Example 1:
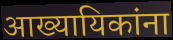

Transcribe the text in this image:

आख्यायिकांना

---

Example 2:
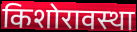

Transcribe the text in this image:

किशोरावस्था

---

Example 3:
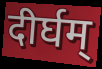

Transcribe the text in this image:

दीर्घम्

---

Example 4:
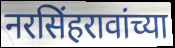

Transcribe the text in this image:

नरसिंहरावांच्या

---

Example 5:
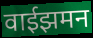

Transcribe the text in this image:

वाईझमन